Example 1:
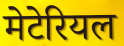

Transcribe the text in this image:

मेटेरियल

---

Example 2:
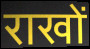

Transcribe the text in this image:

राखों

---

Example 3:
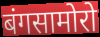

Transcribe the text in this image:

बंगसामोरो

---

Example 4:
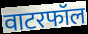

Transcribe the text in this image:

वाटरफॉल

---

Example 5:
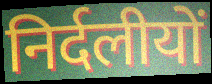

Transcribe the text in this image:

निर्दलीयों